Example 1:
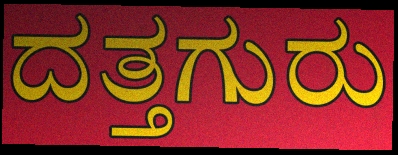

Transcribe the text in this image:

ದತ್ತಗುರು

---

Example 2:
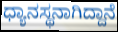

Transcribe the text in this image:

ಧ್ಯಾನಸ್ಥನಾಗಿದ್ದಾನೆ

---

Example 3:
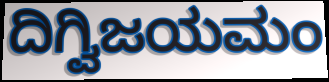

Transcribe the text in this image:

ದಿಗ್ವಿಜಯಮಂ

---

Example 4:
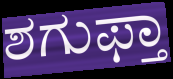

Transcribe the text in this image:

ಶಗುಫ್ತಾ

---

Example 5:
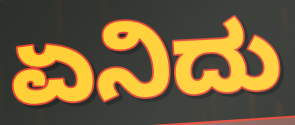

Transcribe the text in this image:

ಏನಿದು